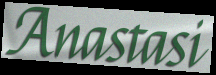
Anastasi